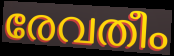
രേവതീം